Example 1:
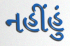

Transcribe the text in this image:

નહીંહું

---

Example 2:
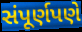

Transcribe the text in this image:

સંપૂર્ણપણે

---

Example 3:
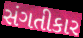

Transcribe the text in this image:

સંગતીકાર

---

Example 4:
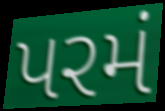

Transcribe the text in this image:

પરમં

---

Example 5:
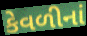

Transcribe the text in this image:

કેવળીનાં